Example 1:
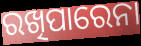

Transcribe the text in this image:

ରଖିପାରେନା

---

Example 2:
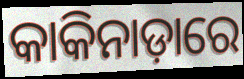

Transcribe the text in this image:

କାକିନାଡ଼ାରେ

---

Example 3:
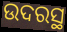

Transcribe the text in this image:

ଉଦରସ୍ଥ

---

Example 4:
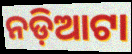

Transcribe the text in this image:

ନଡ଼ିଆଟା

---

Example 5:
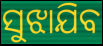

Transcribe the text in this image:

ସୁଝାଯିବ